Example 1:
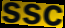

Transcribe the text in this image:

ssc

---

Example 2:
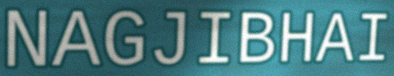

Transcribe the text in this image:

NAGJIBHAI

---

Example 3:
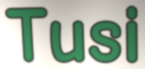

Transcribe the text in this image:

Tusi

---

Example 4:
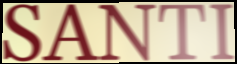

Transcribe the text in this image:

SANTI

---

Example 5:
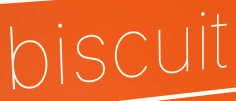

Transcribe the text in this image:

biscuit